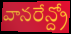
వానరేన్ద్రో